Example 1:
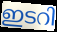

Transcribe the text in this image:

ഇടറി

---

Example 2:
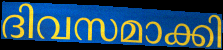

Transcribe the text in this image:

ദിവസമാക്കി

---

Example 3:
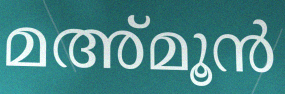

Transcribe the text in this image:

മഅ്മൂൻ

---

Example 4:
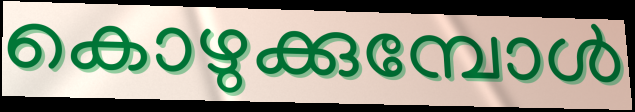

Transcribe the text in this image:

കൊഴുക്കുമ്പോൾ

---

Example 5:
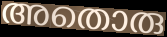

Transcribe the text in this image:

അതൊരു